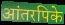
आंतरपिके